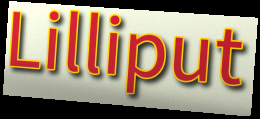
Lilliput